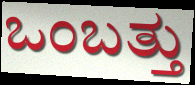
ಒಂಬತ್ತು